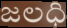
జలధి